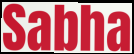
Sabha